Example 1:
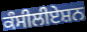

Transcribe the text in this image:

ਕੰਸੀਲੀਏਸ਼ਨ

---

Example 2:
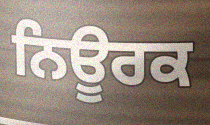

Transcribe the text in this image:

ਨਿਊਰਕ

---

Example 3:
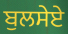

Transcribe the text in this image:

ਬੁਲਸੇਏ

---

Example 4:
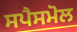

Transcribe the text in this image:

ਸਪੈਸਮੋਲ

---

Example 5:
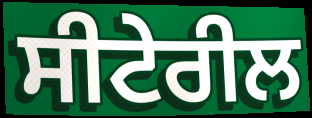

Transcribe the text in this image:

ਸੀਟੇਰੀਲ